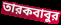
তারকবাবুর